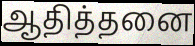
ஆதித்தனை